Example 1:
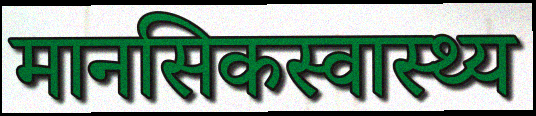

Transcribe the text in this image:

मानसिकस्वास्थ्य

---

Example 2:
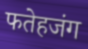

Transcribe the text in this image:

फतेहजंग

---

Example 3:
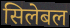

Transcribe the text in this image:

सिलेबल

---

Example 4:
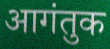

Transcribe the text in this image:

आगंतुक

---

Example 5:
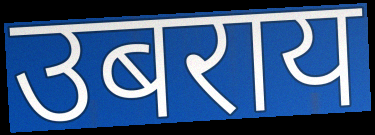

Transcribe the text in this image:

उबराय